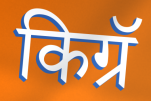
किग्रॅ